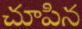
చూపిన